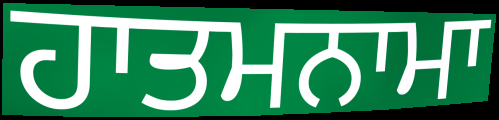
ਹਾਤਮਨਾਮਾ